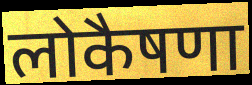
लोकैषणा